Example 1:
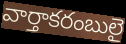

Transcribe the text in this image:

వార్తాకరంబులై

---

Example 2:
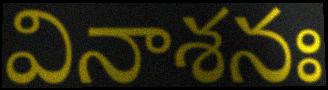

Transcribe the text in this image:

వినాశనః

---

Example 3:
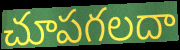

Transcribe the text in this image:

చూపగలదా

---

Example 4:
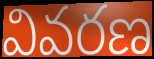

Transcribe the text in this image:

వివరణ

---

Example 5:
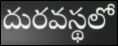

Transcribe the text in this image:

దురవస్థలో